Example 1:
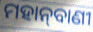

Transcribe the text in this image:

ମହାନ୍‌ବାଣୀ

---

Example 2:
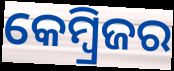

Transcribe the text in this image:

କେମ୍ବ୍ରିଜର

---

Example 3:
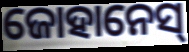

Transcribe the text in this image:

ଜୋହାନେସ୍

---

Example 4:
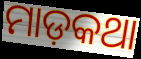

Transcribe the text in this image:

ମାଡ଼କଥା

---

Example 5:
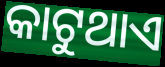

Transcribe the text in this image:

କାଟୁଥାଏ